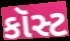
કૉસ્ટ